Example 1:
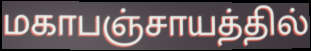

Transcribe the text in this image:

மகாபஞ்சாயத்தில்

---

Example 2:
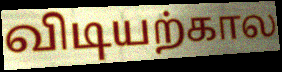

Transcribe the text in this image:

விடியற்கால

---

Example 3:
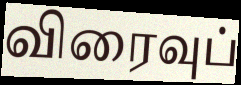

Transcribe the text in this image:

விரைவுப்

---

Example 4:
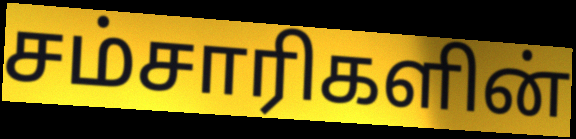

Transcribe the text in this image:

சம்சாரிகளின்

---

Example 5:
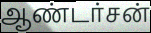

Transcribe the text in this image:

ஆண்டர்சன்